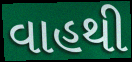
વાહથી